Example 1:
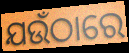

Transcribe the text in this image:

ଯଉଁଠାରେ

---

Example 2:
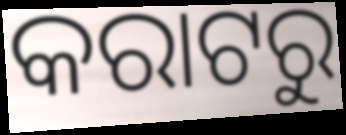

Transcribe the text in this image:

କରାଟରୁ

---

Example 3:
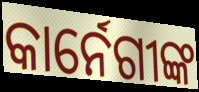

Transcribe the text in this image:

କାର୍ନେଗୀଙ୍କ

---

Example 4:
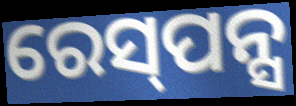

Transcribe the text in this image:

ରେସ୍‌ପନ୍ସ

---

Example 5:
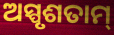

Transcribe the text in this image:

ଅସ୍ପୃଶତାମ୍